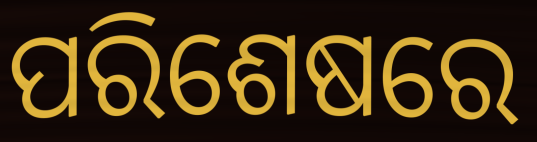
ପରିଶେଷରେ